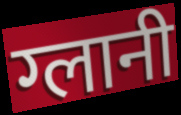
ग्लानी